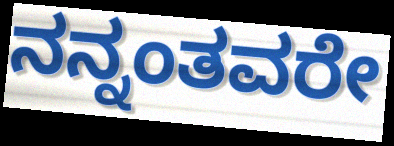
ನನ್ನಂತವರೇ